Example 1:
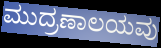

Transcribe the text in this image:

ಮುದ್ರಣಾಲಯವು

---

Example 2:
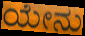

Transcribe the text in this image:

ಯೇನು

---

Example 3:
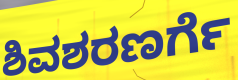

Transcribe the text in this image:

ಶಿವಶರಣರ್ಗೆ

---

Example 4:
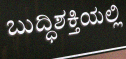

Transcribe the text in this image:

ಬುದ್ಧಿಶಕ್ತಿಯಲ್ಲಿ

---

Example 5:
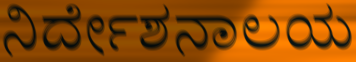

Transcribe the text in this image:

ನಿರ್ದೇಶನಾಲಯ